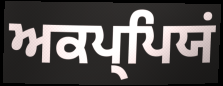
ਅਕਪ੍ਪਿਯਂ